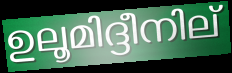
ഉലൂമിദ്ദീനില്